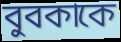
বুবকাকে